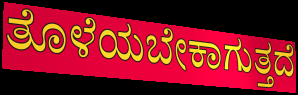
ತೊಳೆಯಬೇಕಾಗುತ್ತದೆ